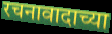
रचनावादाच्या